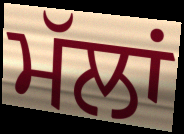
ਮੱਲਾਂ